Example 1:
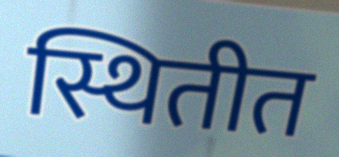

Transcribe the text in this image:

स्थितीत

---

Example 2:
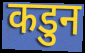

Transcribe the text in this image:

कडुन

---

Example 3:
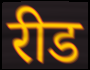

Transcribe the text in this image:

रीड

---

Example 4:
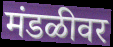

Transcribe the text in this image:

मंडळीवर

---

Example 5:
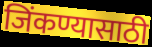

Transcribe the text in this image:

जिंकण्यासाठी